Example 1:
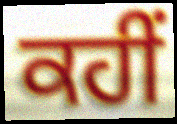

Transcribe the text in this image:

ਕਹੀਂ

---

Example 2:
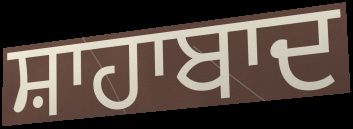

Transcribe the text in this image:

ਸ਼ਾਹਾਬਾਦ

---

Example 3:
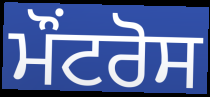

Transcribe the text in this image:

ਮੌਂਟਰੋਸ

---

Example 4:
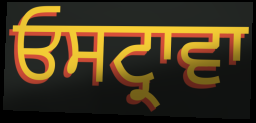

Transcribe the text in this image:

ਓਸਟ੍ਰਾਵਾ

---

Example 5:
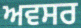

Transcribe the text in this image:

ਅਵਸਰ